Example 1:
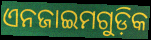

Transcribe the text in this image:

ଏନଜାଇମଗୁଡ଼ିକ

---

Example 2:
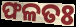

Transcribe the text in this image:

ଫଳତଃ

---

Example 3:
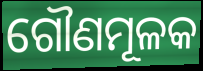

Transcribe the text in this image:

ଗୌଣମୂଳକ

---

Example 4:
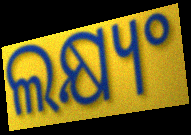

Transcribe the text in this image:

ଲକ୍ଷ୍ୟଂ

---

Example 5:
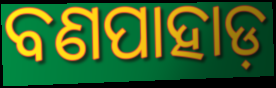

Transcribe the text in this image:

ବଣପାହାଡ଼